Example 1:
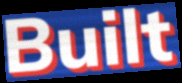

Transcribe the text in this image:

Built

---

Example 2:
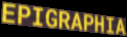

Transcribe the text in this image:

EPIGRAPHIA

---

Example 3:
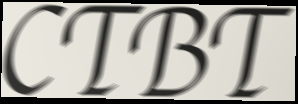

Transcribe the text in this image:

CTBT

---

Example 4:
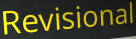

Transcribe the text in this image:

Revisional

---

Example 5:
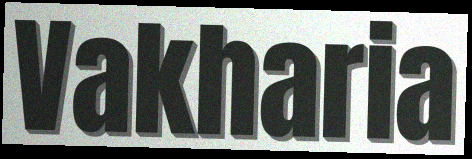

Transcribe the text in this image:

Vakharia